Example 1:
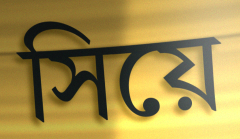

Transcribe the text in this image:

সিয়ে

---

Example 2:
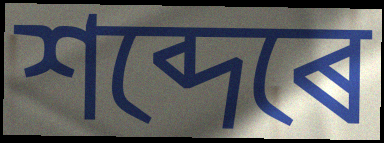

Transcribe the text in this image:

শব্দেৰে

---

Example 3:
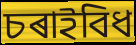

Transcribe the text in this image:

চৰাইবিধ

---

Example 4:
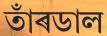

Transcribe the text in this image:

তাঁৰডাল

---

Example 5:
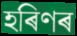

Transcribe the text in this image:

হৰিণৰ